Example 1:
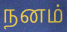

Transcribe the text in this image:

நனம்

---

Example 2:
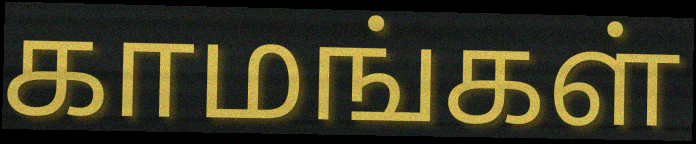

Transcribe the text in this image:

காமங்கள்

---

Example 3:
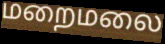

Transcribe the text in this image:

மறைமலை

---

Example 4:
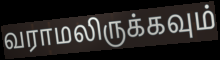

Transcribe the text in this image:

வராமலிருக்கவும்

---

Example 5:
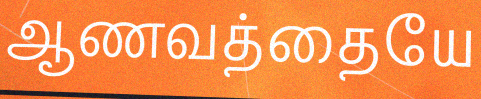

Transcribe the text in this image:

ஆணவத்தையே